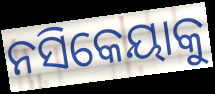
ନସିକେୟାକୁ